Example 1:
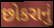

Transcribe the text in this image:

છોકરાનું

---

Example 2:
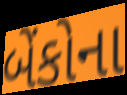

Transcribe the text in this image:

બેંકોના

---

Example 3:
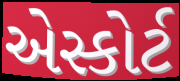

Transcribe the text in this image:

એસ્કોર્ટ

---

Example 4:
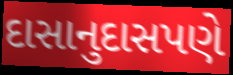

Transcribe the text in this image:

દાસાનુદાસપણે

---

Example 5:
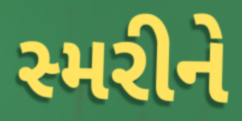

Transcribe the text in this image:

સ્મરીને